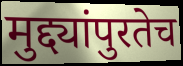
मुद्द्यांपुरतेच